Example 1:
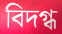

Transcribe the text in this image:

বিদগ্ধ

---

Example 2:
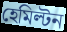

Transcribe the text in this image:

হেমিল্টন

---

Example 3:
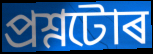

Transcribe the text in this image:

প্ৰশ্নটোৰ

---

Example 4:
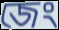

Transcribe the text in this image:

জেং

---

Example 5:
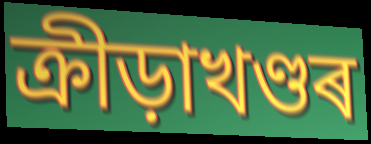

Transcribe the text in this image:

ক্ৰীড়াখণ্ডৰ